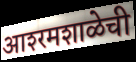
आश्रमशाळेची